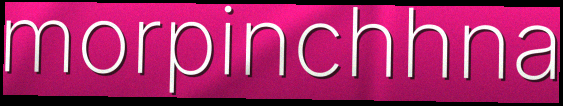
morpinchhna